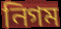
নিগম